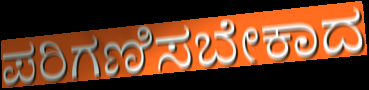
ಪರಿಗಣಿಸಬೇಕಾದ